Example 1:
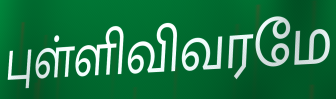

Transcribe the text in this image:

புள்ளிவிவரமே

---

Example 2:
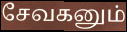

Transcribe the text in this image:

சேவகனும்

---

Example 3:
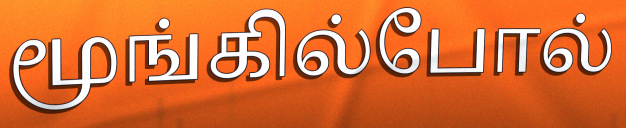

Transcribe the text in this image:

மூங்கில்போல்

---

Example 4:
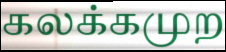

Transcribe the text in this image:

கலக்கமுற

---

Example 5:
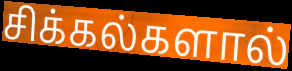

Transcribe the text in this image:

சிக்கல்களால்